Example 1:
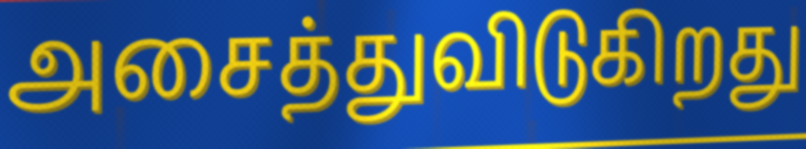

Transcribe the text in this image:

அசைத்துவிடுகிறது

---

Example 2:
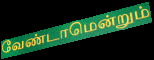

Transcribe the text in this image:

வேண்டாமென்றும்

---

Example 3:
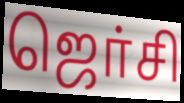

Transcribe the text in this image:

ஜெர்சி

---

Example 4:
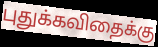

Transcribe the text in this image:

புதுக்கவிதைக்கு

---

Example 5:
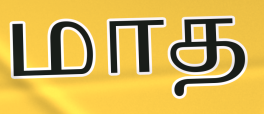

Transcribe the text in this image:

மாத